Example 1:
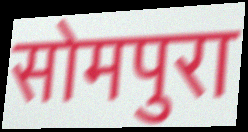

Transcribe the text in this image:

सोमपुरा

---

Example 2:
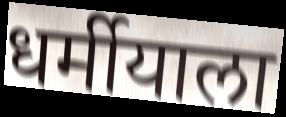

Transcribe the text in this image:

धर्मीयाला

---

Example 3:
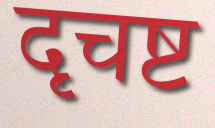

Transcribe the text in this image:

दृचष्ट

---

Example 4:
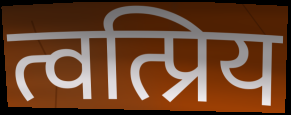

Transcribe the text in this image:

त्वत्प्रिय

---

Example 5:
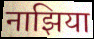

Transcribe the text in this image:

नाझिया